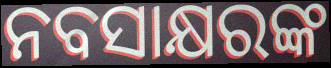
ନବସାକ୍ଷରଙ୍କ